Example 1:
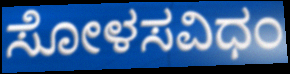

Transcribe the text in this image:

ಸೋಳಸವಿಧಂ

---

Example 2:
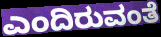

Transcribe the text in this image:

ಎಂದಿರುವಂತೆ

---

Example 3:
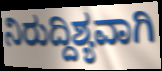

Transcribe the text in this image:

ನಿರುದ್ದಿಶ್ಯವಾಗಿ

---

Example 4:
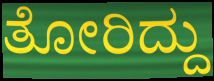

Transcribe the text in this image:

ತೋರಿದ್ದು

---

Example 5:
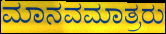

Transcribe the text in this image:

ಮಾನವಮಾತ್ರರು